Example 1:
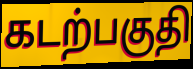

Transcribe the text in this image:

கடற்பகுதி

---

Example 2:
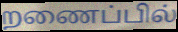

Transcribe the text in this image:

றணைப்பில்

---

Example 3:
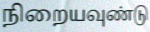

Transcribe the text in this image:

நிறையவுண்டு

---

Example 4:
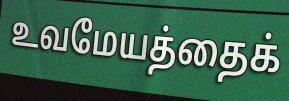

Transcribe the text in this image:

உவமேயத்தைக்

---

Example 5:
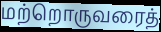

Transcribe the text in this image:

மற்றொருவரைத்